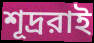
শূদ্ররাই